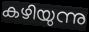
കഴിയുന്നു